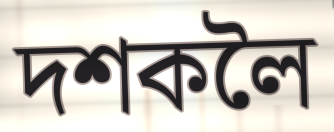
দশকলৈ